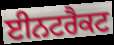
ਈਨਟਰੈਕਟ